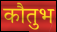
कौतुभ